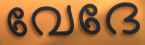
വേദേ